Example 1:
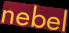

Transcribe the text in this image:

nebel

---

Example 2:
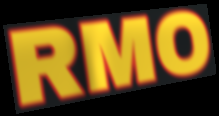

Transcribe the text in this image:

RMO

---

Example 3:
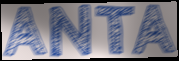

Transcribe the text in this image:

ANTA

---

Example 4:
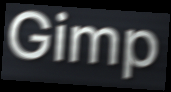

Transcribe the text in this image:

Gimp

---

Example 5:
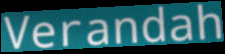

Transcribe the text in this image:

Verandah